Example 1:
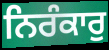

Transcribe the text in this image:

ਨਿਰੰਕਾਰੁ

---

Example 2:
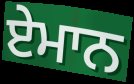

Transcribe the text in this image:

ਏਮਾਨ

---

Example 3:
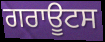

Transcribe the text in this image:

ਗਰਾਊਟਸ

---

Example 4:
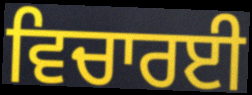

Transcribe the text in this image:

ਵਿਚਾਰਈ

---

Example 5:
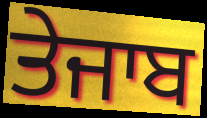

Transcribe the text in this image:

ਤੇਜਾਬ